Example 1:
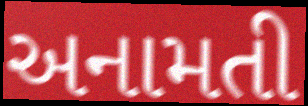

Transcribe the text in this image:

અનામતી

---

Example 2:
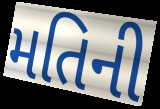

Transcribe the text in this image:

મતિની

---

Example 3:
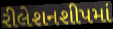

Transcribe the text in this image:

રીલેશનશીપમાં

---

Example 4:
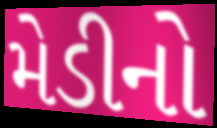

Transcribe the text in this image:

મેડીનો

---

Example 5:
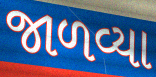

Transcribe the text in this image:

જાળવ્યા